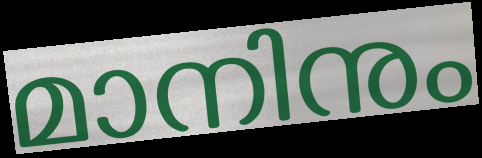
മാനിനും